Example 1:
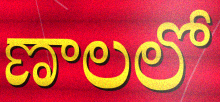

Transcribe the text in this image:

ణాలలో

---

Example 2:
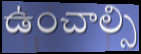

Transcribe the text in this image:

ఉంచాల్సి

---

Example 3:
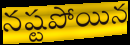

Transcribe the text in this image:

నష్టపోయిన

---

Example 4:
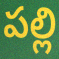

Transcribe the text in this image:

పల్లి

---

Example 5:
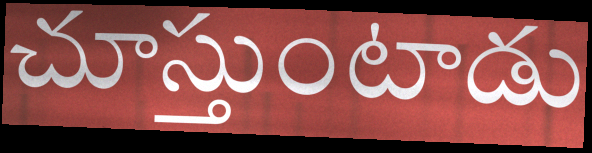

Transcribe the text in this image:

చూస్తుంటాడు